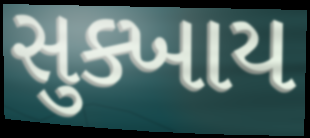
સુક્ખાય